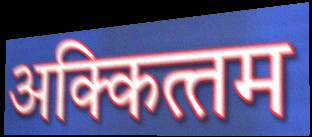
अक्‍कित्‍तम